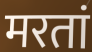
मरतां